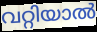
വറ്റിയാൽ